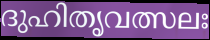
ദുഹിതൃവത്സലഃ